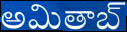
అమితాబ్